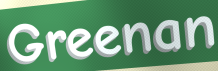
Greenan